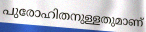
പുരോഹിതനുള്ളതുമാണ്